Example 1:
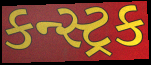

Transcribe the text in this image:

કન્સ્ટ્રક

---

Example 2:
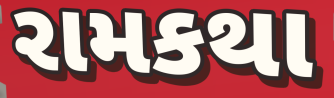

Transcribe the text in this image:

રામકથા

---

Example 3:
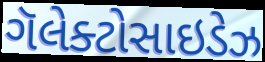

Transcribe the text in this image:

ગૅલેક્ટોસાઇડેઝ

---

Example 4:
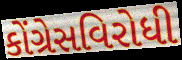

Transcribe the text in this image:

કોંગ્રેસવિરોધી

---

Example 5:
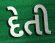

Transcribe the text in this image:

દેતી